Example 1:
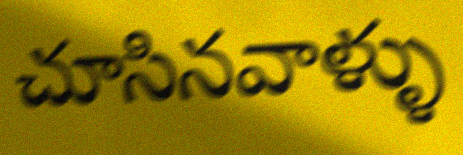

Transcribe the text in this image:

చూసినవాళ్ళు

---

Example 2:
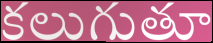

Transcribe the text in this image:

కలుగుతూ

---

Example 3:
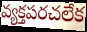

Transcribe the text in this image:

వ్యక్తపరచలేక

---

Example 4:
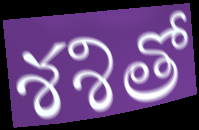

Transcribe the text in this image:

శశితో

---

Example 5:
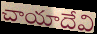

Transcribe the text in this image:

చాయాదేవి